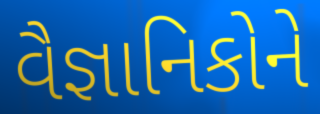
વૈજ્ઞાનિકોને